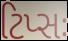
ટિપ્સઃ